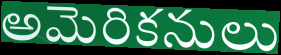
అమెరికనులు